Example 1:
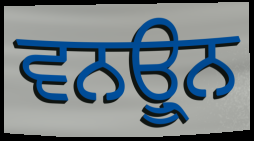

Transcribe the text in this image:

ਵਨਊ੍ਨ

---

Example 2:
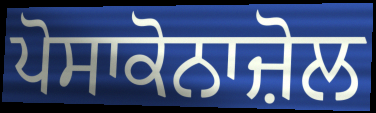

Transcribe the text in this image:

ਪੋਸਾਕੋਨਾਜ਼ੋਲ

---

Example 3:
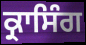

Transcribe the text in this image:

ਕ੍ਰਾਸਿੰਗ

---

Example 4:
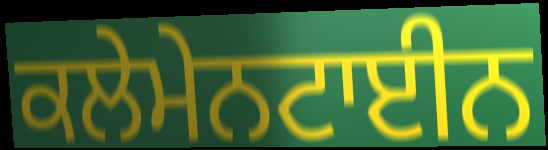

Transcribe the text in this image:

ਕਲੇਮੇਨਟਾਈਨ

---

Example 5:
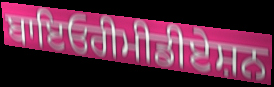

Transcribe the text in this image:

ਬਾਇਓਰੀਮੀਡੀਏਸ਼ਨ